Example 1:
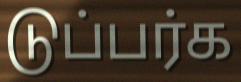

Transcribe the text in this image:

டுப்பர்க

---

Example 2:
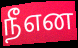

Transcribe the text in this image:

நீஎன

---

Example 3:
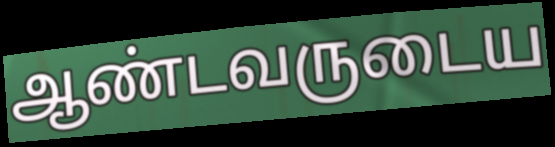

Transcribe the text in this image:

ஆண்டவருடைய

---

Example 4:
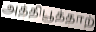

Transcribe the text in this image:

அத்திபூத்தாற்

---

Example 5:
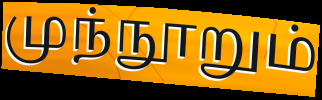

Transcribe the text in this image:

முந்நூறும்